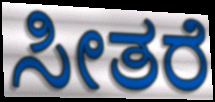
ಸೀತರೆ